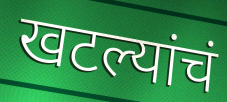
खटल्यांचं